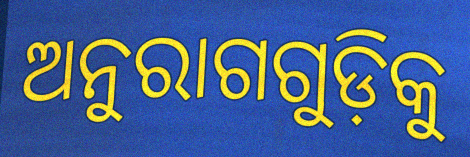
ଅନୁରାଗଗୁଡ଼ିକୁ